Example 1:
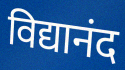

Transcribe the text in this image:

विद्यानंद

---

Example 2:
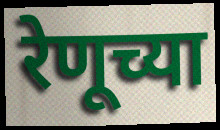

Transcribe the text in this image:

रेणूच्या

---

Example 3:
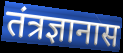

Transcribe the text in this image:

तंत्रज्ञानास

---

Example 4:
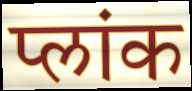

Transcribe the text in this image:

प्लांक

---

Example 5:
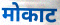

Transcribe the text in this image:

मोकाट